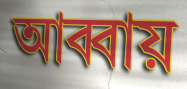
আব্বায়